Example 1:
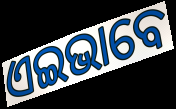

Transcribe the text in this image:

ଏଇଭାବେ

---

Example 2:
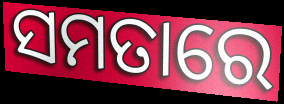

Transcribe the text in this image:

ସମତାରେ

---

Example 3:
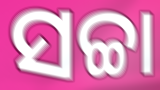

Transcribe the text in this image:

ସଚ୍ଚା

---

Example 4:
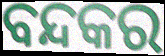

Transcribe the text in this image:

ବନ୍ଦକର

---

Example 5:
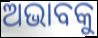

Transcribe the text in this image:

ଅଭାବକୁ